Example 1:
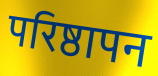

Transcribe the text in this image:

परिष्ठापन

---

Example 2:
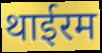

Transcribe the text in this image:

थाईरम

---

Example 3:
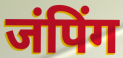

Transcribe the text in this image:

जंपिंग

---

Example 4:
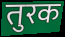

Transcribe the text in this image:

तुरक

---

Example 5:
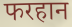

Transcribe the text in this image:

फरहान